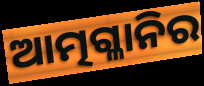
ଆତ୍ମଗ୍ଳାନିର